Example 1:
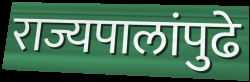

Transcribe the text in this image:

राज्यपालांपुढे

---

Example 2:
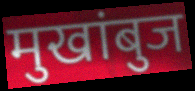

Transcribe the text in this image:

मुखांबुज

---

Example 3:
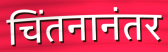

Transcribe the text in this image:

चिंतनानंतर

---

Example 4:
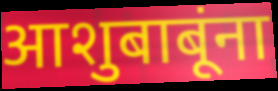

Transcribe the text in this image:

आशुबाबूंना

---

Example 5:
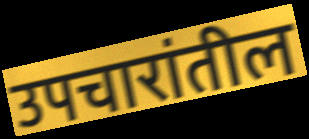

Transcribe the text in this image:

उपचारांतील